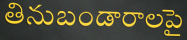
తినుబండారాలపై